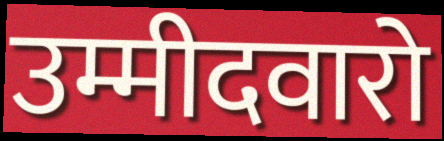
उम्मीदवारो